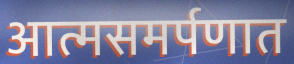
आत्मसमर्पणात